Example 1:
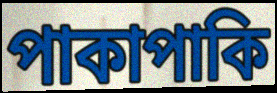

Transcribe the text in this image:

পাকাপাকি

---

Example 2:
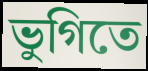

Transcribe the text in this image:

ভুগিতে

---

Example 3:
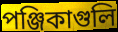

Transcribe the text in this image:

পঞ্জিকাগুলি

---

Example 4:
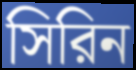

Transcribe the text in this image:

সিরিন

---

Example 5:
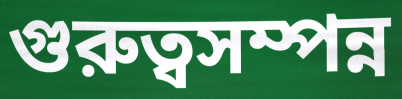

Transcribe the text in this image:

গুরুত্বসম্পন্ন